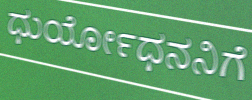
ಧುರ್ಯೋಧನನಿಗೆ